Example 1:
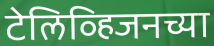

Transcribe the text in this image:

टेलिव्हिजनच्या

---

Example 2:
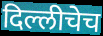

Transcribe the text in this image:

दिल्लीचेच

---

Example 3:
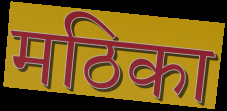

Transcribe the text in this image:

मठिका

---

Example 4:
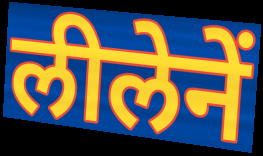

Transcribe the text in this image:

लीलेनें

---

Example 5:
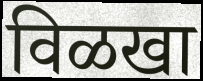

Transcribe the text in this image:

विळखा